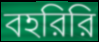
বহরিরি